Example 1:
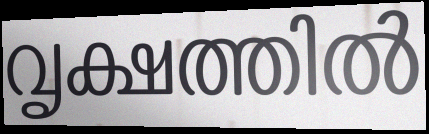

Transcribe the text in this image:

വൃക്ഷത്തിൽ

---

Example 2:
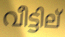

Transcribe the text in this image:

വീട്ടില്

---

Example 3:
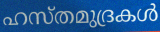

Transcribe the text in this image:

ഹസ്തമുദ്രകൾ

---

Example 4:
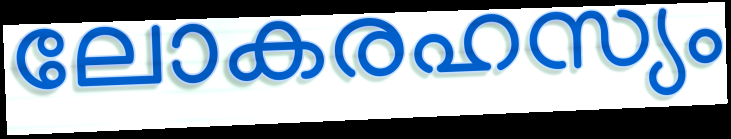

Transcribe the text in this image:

ലോകരഹസ്യം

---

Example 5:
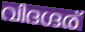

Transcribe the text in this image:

വിദഗ്ദര്